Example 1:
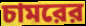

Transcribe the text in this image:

চামরের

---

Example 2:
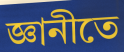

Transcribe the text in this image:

জ্ঞানীতে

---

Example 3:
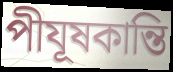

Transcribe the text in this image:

পীযূষকান্তি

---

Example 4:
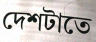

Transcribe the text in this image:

দেশটাতে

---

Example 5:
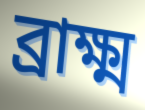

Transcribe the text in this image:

ব্রাক্ষ্ম